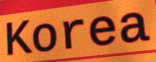
Korea